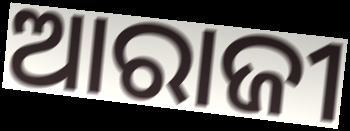
ଆରାଜୀ